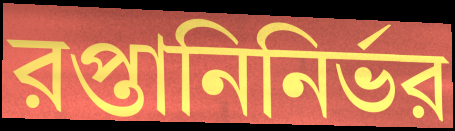
রপ্তানিনির্ভর